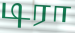
டிரா